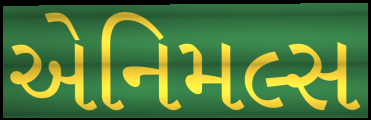
એનિમલ્સ